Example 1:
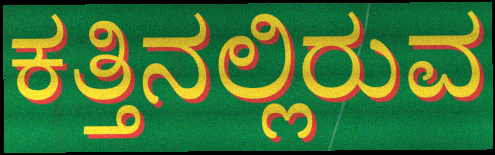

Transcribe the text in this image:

ಕತ್ತಿನಲ್ಲಿರುವ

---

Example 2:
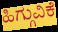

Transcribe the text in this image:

ಹಿಗ್ಗುವಿಕೆ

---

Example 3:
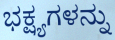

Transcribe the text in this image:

ಭಕ್ಷ್ಯಗಳನ್ನು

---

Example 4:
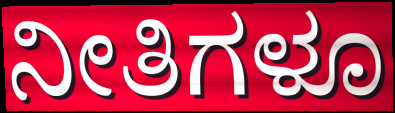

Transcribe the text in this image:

ನೀತಿಗಳೂ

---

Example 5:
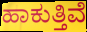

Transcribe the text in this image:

ಹಾಕುತ್ತಿವೆ